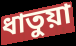
ধাতুয়া